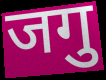
जगु